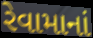
રેવામાનાં